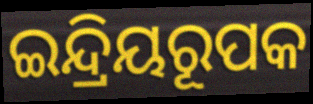
ଇନ୍ଦ୍ରିୟରୂପକ